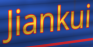
Jiankui